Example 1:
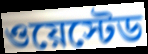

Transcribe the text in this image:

ওয়েস্টেড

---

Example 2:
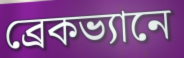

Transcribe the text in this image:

ব্রেকভ্যানে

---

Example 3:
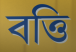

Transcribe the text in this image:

বত্তি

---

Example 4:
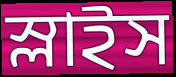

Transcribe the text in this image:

স্লাইস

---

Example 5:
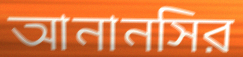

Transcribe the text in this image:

আনানসির